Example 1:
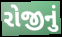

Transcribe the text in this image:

રોજીનું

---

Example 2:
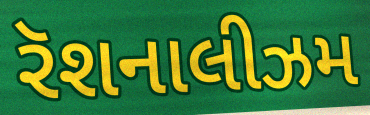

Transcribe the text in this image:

રૅશનાલીઝમ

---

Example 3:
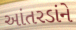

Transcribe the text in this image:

આંતરડાંને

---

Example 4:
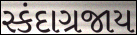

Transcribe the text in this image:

સ્કંદાગ્રજાય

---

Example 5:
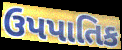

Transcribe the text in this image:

ઉપપાતિક